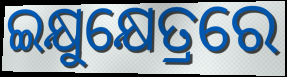
ଇକ୍ଷୁକ୍ଷେତ୍ରରେ